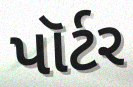
પૉર્ટર